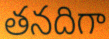
తనదిగా